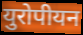
युरोपीयन